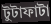
টুটাফাটা